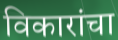
विकारांचा